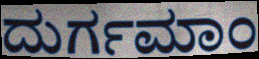
ದುರ್ಗಮಾಂ